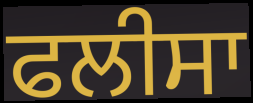
ਫਲੀਸਾ